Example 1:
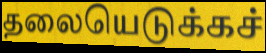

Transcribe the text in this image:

தலையெடுக்கச்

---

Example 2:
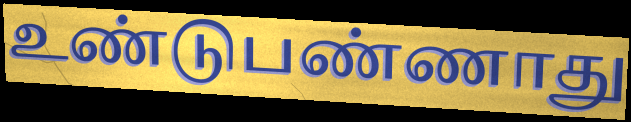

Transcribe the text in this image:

உண்டுபண்ணாது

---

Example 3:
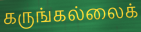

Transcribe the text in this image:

கருங்கல்லைக்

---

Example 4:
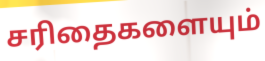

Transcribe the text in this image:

சரிதைகளையும்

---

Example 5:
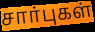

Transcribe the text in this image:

சார்புகள்